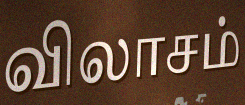
விலாசம்